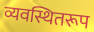
व्यवस्थितरूप